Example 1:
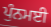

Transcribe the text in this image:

ਪੁੰਨਮਈ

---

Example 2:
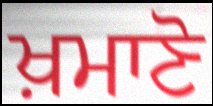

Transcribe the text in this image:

ਖ਼ਮਾਣੋ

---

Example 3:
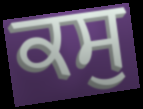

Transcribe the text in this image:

ਕਸੁ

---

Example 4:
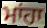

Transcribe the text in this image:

ਮਾਂਹਾ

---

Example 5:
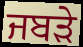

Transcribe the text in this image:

ਜਬੜੇ